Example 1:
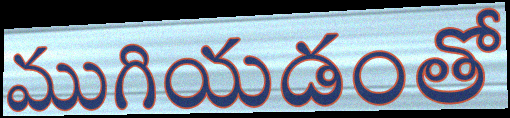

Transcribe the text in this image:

ముగియడంతో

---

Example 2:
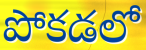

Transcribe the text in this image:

పోకడలో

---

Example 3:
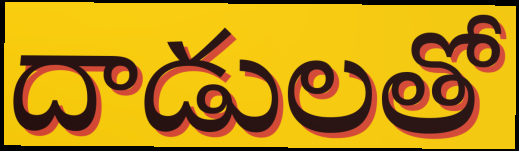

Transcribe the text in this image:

దాడులతో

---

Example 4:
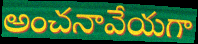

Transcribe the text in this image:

అంచనావేయగా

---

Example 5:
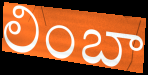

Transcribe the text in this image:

లింబా